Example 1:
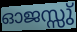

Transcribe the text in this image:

ഓജസ്സു്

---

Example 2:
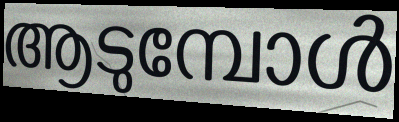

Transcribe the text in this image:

ആടുമ്പോൾ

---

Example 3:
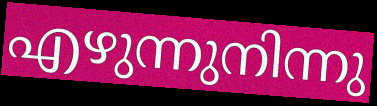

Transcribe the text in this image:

എഴുന്നുനിന്നു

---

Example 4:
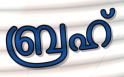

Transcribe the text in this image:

ബ്രഹ്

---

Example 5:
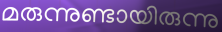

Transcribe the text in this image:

മരുന്നുണ്ടായിരുന്നു